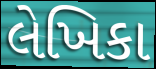
લેખિકા